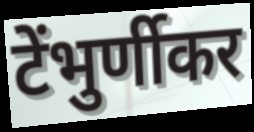
टेंभुर्णीकर